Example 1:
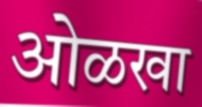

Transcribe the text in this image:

ओळखा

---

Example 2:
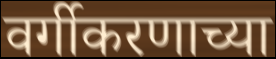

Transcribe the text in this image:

वर्गीकरणाच्या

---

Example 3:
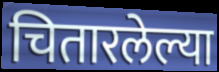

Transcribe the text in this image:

चितारलेल्या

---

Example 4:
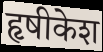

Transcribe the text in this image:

हृषीकेश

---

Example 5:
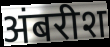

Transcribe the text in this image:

अंबरीश